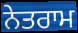
ਨੇਤਰਾਮ